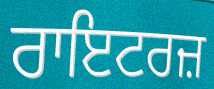
ਰਾਇਟਰਜ਼